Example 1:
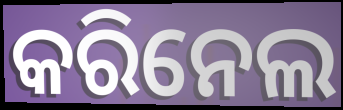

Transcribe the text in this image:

କରିନେଲ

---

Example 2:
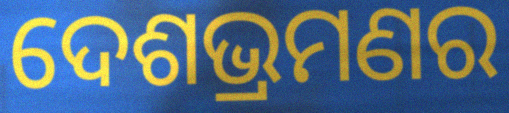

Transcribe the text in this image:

ଦେଶଭ୍ରମଣର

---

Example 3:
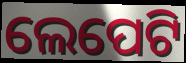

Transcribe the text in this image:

ଲେପେଟି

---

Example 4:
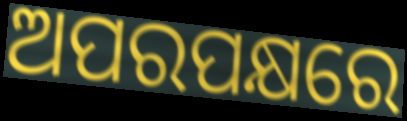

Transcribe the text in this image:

ଅପରପକ୍ଷରେ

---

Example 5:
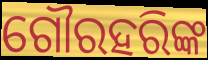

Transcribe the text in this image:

ଗୌରହରିଙ୍କ